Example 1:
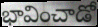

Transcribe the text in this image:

భావించాడో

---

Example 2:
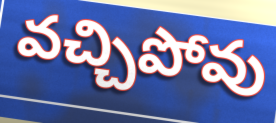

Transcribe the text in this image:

వచ్చిపోవు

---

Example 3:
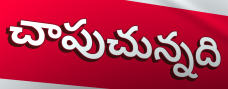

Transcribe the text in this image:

చాపుచున్నది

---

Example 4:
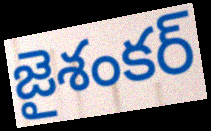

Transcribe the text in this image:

జైశంకర్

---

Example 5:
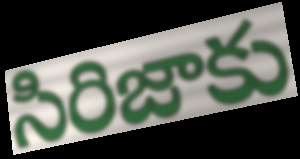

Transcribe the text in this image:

సిరిజాకు